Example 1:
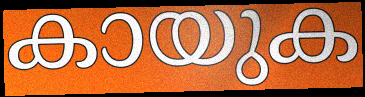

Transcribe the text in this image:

കായുക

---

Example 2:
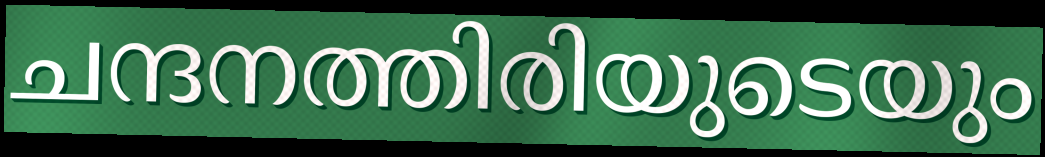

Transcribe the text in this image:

ചന്ദനത്തിരിയുടെയും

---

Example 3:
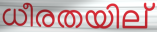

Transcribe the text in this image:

ധീരതയില്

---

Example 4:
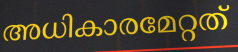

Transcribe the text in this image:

അധികാരമേറ്റത്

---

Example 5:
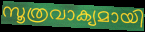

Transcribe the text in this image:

സൂത്രവാക്യമായി